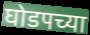
घोडपच्या